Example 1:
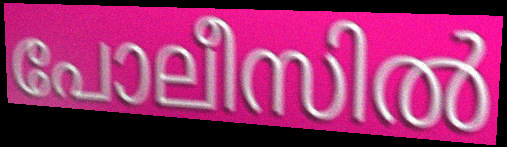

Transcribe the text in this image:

പോലീസിൽ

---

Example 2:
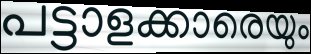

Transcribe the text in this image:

പട്ടാളക്കാരെയും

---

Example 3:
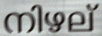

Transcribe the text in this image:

നിഴല്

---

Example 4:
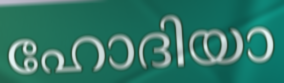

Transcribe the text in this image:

ഹോദിയാ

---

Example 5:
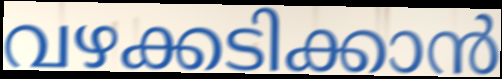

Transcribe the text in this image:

വഴക്കടിക്കാൻ